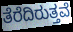
ತೆರೆದಿರುತ್ತವೆ